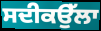
ਸਦੀਕਉੱਲਾ